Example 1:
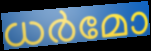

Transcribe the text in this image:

ധർമോ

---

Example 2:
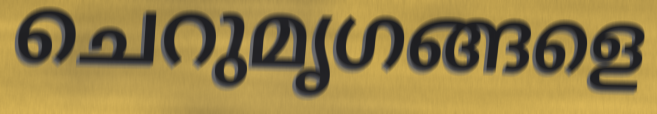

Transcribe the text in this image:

ചെറുമൃഗങ്ങളെ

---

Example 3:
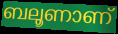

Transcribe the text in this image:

ബലൂണാണ്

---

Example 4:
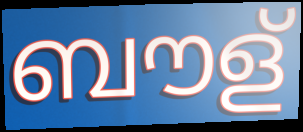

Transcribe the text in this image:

ബൗള്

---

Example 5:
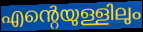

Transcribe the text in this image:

എന്റെയുള്ളിലും